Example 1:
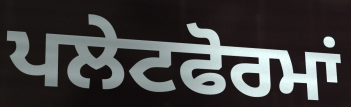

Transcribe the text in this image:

ਪਲੇਟਫੋਰਮਾਂ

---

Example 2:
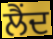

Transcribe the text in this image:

ਲੈਂਦ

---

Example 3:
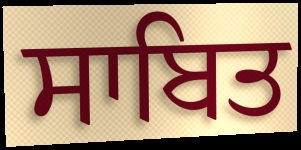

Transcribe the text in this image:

ਸਾਬਿਤ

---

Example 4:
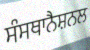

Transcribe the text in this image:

ਸੰਸਥਾਨੈਸ਼ਨਲ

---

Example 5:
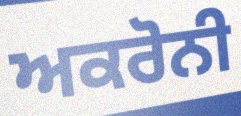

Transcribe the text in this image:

ਅਕਰੋਨੀ